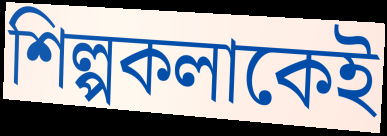
শিল্পকলাকেই